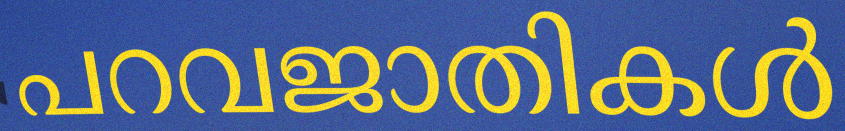
പറവജാതികൾ